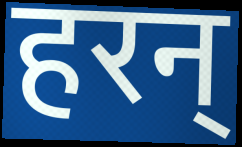
हरन्